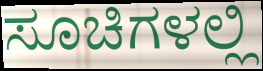
ಸೂಚಿಗಳಲ್ಲಿ